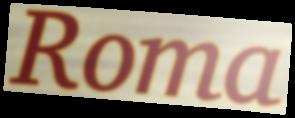
Roma